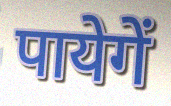
पायेगें